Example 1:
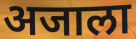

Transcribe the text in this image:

अजाला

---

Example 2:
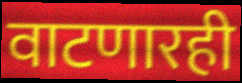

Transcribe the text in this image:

वाटणारही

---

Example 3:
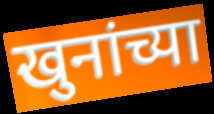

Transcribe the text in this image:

खुनांच्या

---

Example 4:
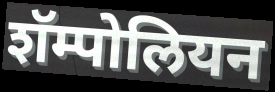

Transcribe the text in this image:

शॅम्पोलियन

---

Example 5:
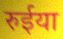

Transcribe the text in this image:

रुईया